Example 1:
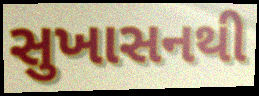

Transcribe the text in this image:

સુખાસનથી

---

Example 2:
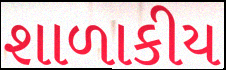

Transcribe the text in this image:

શાળાકીય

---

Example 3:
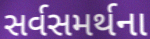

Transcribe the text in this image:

સર્વસમર્થના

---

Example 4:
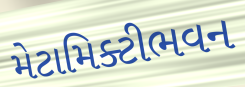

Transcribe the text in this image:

મેટામિક્ટીભવન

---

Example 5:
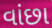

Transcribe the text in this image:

વાંછા